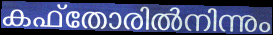
കഫ്തോരിൽനിന്നും